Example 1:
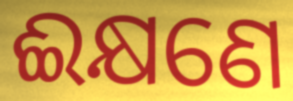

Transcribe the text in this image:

ଈକ୍ଷଣେ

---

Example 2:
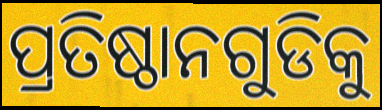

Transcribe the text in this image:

ପ୍ରତିଷ୍ଠାନଗୁଡିକୁ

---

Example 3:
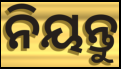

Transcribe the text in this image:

ନିୟନ୍ତୁ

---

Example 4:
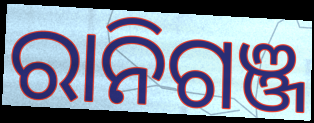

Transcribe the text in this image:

ରାନିଗଞ୍ଜ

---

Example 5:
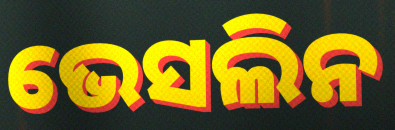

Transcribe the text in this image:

ଭେସଲିନ